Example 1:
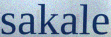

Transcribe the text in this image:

sakale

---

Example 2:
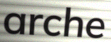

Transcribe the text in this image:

arche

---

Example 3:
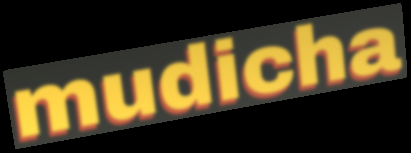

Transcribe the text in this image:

mudicha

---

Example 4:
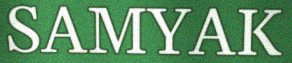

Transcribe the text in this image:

SAMYAK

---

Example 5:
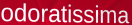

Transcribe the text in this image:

odoratissima